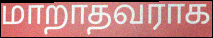
மாறாதவராக